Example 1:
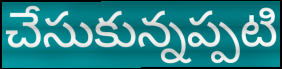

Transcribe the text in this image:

చేసుకున్నప్పటి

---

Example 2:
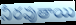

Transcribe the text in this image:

నీరవుతాయి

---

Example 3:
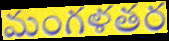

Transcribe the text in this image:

మంగళతర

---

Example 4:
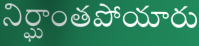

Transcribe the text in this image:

నిర్ఘాంతపోయారు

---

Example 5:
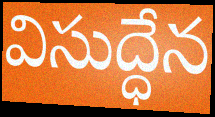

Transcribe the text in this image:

విసుద్ధేన